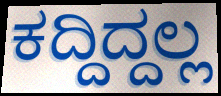
ಕದ್ದಿದ್ದಲ್ಲ